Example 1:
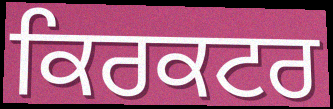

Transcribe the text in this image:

ਕਿਰਕਟਰ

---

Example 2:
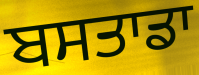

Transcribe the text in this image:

ਬਸਤਾਡਾ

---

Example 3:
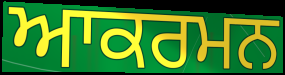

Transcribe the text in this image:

ਆਕਰਮਨ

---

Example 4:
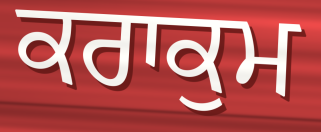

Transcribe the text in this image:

ਕਰਾਕੁਮ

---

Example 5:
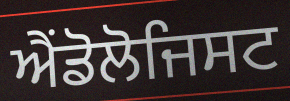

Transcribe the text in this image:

ਐਂਡੋਲੋਜਿਸਟ